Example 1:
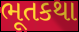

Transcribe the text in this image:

ભૂતકથા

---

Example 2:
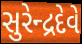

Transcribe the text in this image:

સુરેન્દ્રદેવે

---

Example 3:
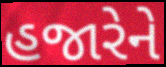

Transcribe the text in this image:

હજારેને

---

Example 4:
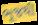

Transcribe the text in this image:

ભૂજથી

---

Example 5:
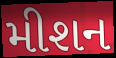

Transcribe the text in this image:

મીશન